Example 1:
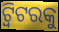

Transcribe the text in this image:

ଟ୍ୱିଟରକୁ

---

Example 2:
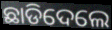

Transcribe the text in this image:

ଛାଡିଦେଲେ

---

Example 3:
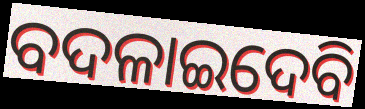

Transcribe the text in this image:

ବଦଳାଇଦେବି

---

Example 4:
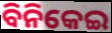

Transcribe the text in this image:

ବିନିକେଇ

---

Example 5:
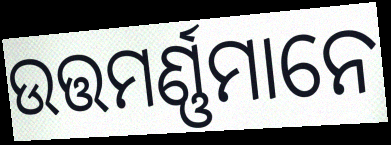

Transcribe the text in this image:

ଉତ୍ତମର୍ଣ୍ଣମାନେ